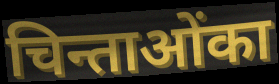
चिन्ताओंका